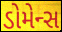
ડોમેન્સ